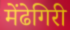
मेंढेगिरी